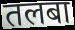
तलबा